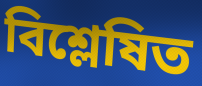
বিশ্লেষিত